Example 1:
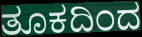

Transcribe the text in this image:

ತೂಕದಿಂದ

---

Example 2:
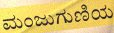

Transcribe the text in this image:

ಮಂಜುಗುಣಿಯ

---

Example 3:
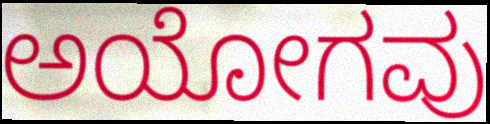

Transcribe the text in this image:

ಅಯೋಗವು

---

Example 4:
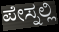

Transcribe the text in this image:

ಪೇಸ್ನಲ್ಲಿ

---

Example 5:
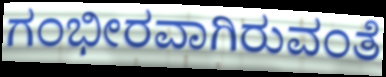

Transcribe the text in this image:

ಗಂಭೀರವಾಗಿರುವಂತೆ